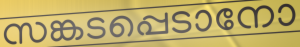
സങ്കടപ്പെടാനോ